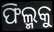
ଫିଲ୍ମକୁ